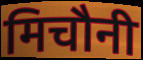
मिचौनी